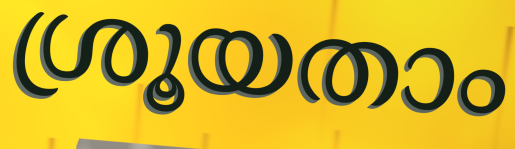
ശ്രൂയതാം